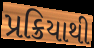
પ્રક્રિયાથી